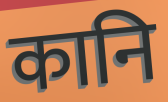
कानि